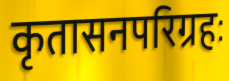
कृतासनपरिग्रहः